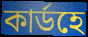
কাৰ্ডহে